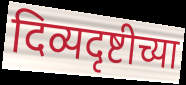
दिव्यदृष्टीच्या